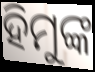
ହିମୁଙ୍କ